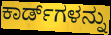
ಕಾರ್ಡ್‌ಗಳನ್ನು